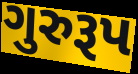
ગુરુરૂપ